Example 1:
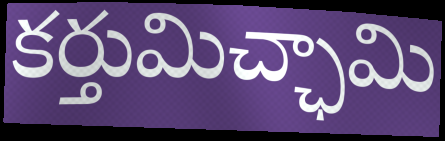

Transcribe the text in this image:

కర్తుమిచ్ఛామి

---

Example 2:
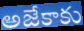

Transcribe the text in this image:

అజేకాకు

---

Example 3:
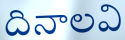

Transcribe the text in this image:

దినాలవి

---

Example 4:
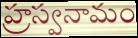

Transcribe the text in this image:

హ్రస్వనామం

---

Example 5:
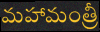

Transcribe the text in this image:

మహామంత్రీ